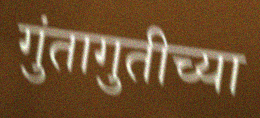
गुंतागुतीच्या